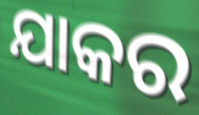
ଯାକର